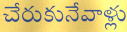
చేరుకునేవాళ్లు